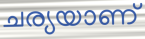
ചര്യയാണ്